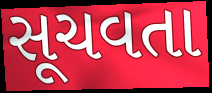
સૂચવતા